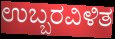
ಉಬ್ಬರವಿಳಿತ